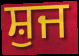
ਸ਼ੁਜ